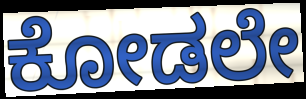
ಕೋಡಲೇ